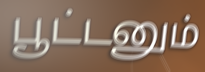
பூட்டனும்